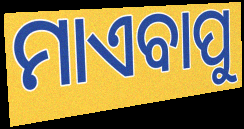
ମାଏବାପୁ